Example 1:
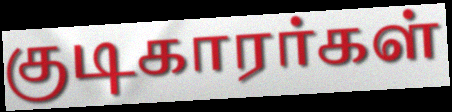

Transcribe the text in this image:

குடிகாரர்கள்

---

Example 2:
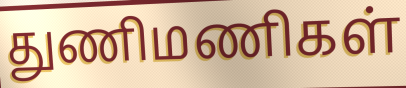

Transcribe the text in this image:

துணிமணிகள்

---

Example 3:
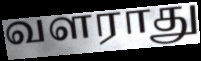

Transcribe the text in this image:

வளராது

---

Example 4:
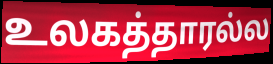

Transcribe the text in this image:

உலகத்தாரல்ல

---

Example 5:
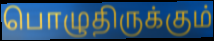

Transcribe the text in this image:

பொழுதிருக்கும்